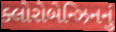
ક્લોરોબેન્ઝિનનું